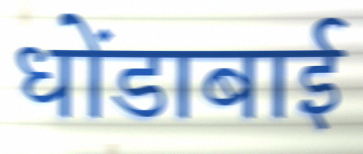
धोंडाबाई